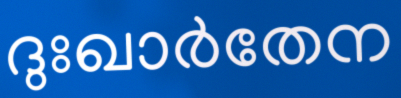
ദുഃഖാർതേന